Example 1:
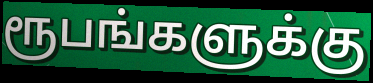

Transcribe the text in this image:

ரூபங்களுக்கு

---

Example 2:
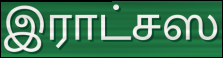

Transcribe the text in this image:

இராட்சஸ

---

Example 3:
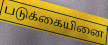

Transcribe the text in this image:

படுக்கையினை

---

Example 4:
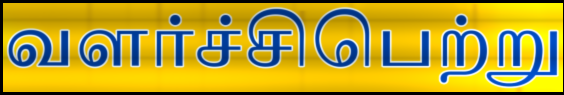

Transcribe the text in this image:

வளர்ச்சிபெற்று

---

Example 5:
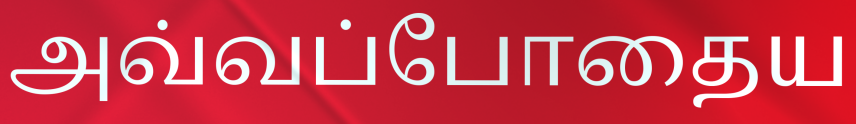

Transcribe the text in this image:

அவ்வப்போதைய